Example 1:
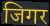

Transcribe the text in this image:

जिगर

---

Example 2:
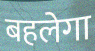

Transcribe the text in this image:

बहलेगा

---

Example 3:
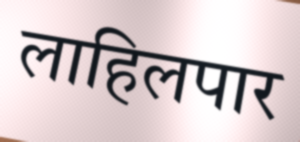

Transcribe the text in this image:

लाहिलपार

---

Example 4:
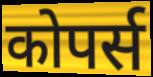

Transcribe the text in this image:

कोपर्स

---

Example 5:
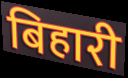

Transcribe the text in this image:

बिहारी